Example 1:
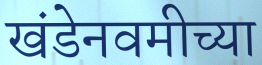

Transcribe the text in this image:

खंडेनवमीच्या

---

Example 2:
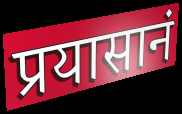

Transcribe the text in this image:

प्रयासानं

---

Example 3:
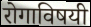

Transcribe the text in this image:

रोगाविषयी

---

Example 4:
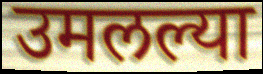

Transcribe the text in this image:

उमलल्या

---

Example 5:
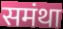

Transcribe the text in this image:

समंथा